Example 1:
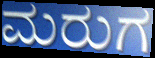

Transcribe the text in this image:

ಮರುಗ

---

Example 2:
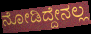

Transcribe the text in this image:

ನೋಡಿದ್ದೇನಲ್ಲ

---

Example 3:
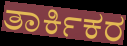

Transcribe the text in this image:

ತಾರ್ಕಿಕರ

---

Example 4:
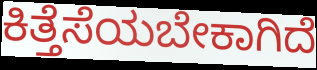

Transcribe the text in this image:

ಕಿತ್ತೆಸೆಯಬೇಕಾಗಿದೆ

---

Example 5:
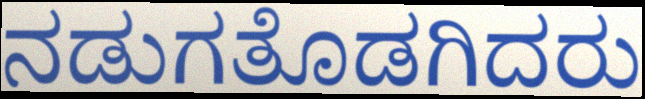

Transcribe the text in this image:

ನಡುಗತೊಡಗಿದರು